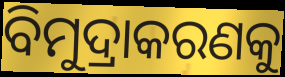
ବିମୁଦ୍ରାକରଣକୁ